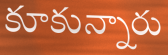
కూకున్నారు